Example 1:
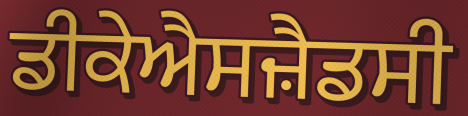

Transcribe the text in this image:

ਡੀਕੇਐਸਜ਼ੈਡਸੀ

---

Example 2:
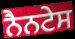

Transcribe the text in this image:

ਨੈਨਟੇਸ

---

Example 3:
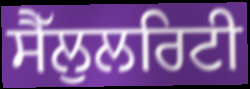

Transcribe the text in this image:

ਸੈੱਲੁਲਰਿਟੀ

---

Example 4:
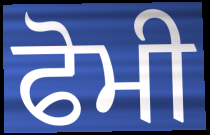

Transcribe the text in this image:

ਫੋਮੀ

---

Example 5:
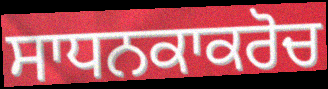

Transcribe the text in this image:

ਸਾਧਨਕਾਕਰੋਚ